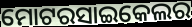
ମୋଟରସାଇକେଲର